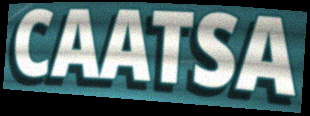
CAATSA